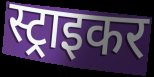
स्ट्राइकर